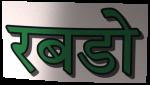
रबडो